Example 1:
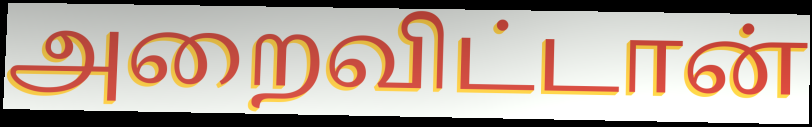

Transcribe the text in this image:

அறைவிட்டான்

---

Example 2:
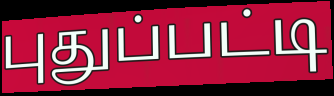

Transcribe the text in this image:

புதுப்பட்டி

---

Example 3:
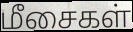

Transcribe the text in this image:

மீசைகள்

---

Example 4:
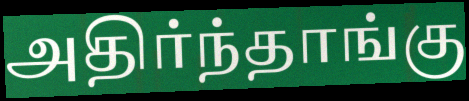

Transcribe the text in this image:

அதிர்ந்தாங்கு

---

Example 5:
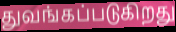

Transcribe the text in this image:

துவங்கப்படுகிறது